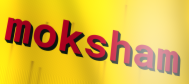
moksham